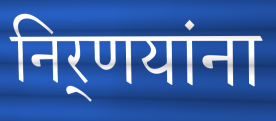
निर्णयांना